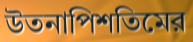
উতনাপিশতিমের